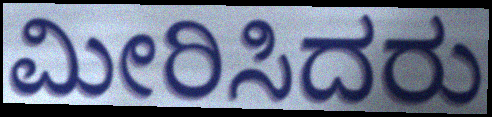
ಮೀರಿಸಿದರು